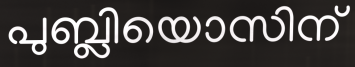
പുബ്ലിയൊസിന്